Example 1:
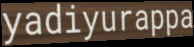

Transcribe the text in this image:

yadiyurappa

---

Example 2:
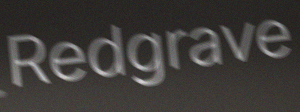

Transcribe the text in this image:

Redgrave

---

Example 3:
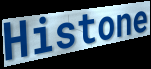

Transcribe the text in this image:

Histone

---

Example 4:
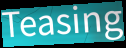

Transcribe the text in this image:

Teasing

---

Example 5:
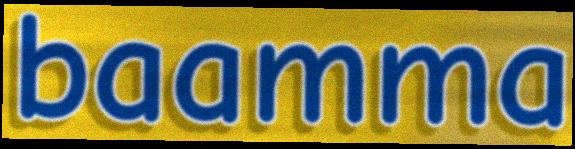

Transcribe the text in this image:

baamma